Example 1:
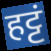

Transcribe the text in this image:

हट्टं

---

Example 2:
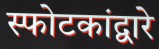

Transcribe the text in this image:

स्फोटकांद्वारे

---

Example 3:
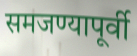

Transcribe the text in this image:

समजण्यापूर्वी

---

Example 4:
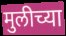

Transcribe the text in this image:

मुलीच्‍या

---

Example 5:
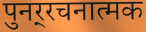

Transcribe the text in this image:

पुनर्रचनात्मक